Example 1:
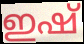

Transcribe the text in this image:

ഇഷ്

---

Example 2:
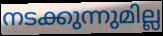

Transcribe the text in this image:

നടക്കുന്നുമില്ല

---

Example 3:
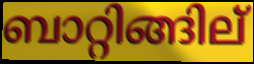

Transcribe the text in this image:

ബാറ്റിങ്ങില്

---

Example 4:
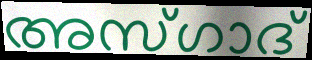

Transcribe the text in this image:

അസ്ഗാദ്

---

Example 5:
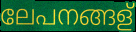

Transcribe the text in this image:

ലേപനങ്ങള്